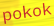
pokok